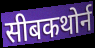
सीबकथोर्न